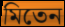
মিতেন